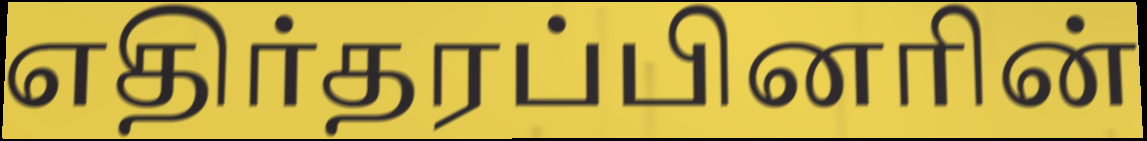
எதிர்தரப்பினரின்